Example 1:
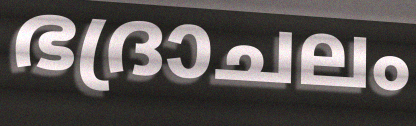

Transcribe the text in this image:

ഭദ്രാചലം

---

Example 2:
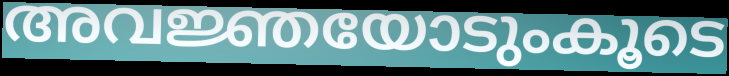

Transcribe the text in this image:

അവജ്ഞയോടുംകൂടെ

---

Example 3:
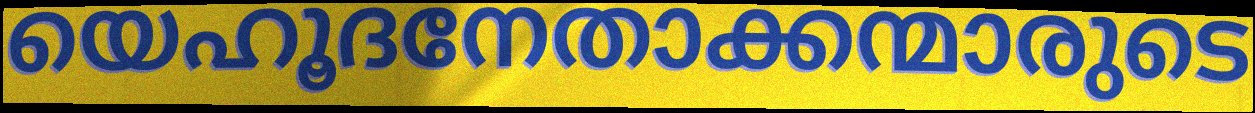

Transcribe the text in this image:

യെഹൂദനേതാക്കന്മാരുടെ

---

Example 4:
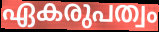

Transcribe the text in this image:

ഏകരുപത്വം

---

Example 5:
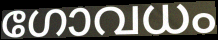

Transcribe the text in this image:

ഗോവധം